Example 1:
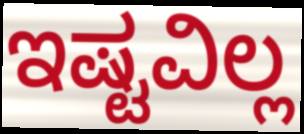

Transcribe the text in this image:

ಇಷ್ಟವಿಲ್ಲ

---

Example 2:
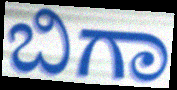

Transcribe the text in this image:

ಬಿಗಾ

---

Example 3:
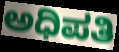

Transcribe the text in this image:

ಅಧಿಪತಿ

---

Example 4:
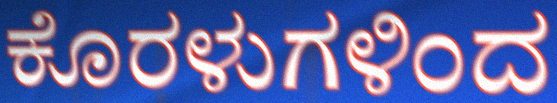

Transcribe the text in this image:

ಕೊರಳುಗಳಿಂದ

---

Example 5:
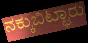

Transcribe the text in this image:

ನಕ್ಕುಬಿಟ್ಟಾರು